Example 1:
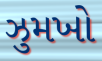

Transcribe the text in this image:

ઝુમખો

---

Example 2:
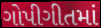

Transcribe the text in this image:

ગોપીગીતમાં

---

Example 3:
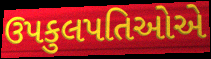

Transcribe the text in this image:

ઉપકુલપતિઓએ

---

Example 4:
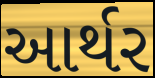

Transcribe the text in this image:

આર્થર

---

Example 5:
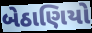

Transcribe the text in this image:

બેઠાણિયો